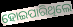
ହୋଇପାରିଥିଲେ